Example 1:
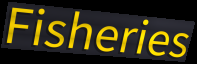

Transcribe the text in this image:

Fisheries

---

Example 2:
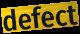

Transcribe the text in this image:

defect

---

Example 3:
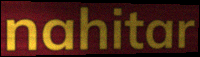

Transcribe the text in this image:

nahitar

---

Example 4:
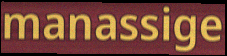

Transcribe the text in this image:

manassige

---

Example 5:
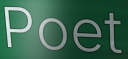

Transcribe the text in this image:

Poet